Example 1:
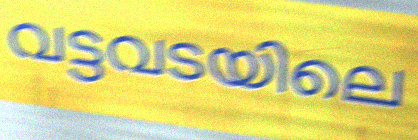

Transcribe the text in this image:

വട്ടവടയിലെ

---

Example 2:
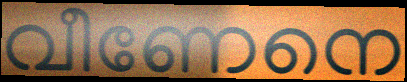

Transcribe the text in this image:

വീണേനെ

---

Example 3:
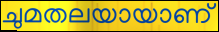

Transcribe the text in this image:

ചുമതലയായാണ്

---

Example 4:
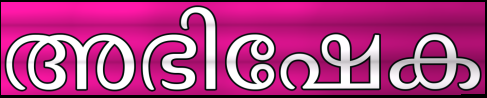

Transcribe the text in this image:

അഭിഷേക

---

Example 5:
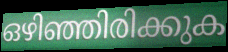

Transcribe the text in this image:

ഒഴിഞ്ഞിരിക്കുക